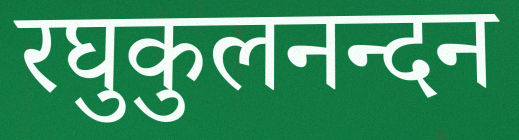
रघुकुलनन्दन